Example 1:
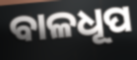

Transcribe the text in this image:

ବାଳଧୂପ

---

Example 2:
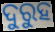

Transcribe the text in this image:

ଦୁରୁହ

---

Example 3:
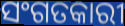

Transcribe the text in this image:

ସଂଗତକାରୀ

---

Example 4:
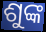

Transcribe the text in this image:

ଶୁଙ୍କ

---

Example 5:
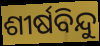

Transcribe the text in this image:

ଶୀର୍ଷବିନ୍ଦୁ